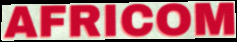
AFRICOM